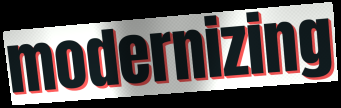
modernizing